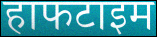
हाफटाइम